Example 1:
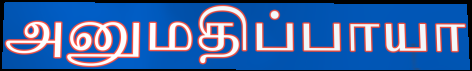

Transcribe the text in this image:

அனுமதிப்பாயா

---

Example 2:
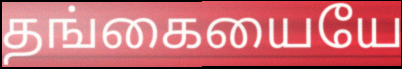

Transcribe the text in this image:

தங்கையையே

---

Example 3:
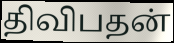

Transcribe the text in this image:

திவிபதன்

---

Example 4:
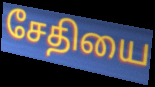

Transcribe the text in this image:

சேதியை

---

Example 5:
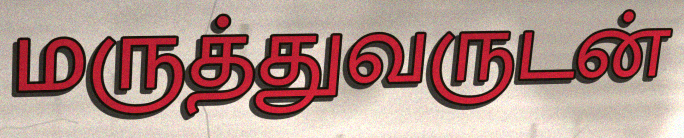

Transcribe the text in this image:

மருத்துவருடன்